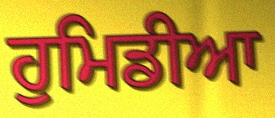
ਹੁਮਿਡੀਆ